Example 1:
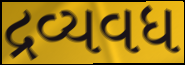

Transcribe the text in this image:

દ્રવ્યવધ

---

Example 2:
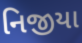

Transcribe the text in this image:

નિજીયા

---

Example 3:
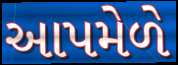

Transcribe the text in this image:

આપમેળે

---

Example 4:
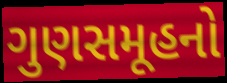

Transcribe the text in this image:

ગુણસમૂહનો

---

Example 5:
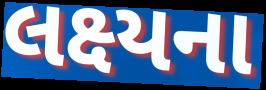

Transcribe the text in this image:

લક્ષ્યના